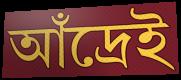
আঁদ্রেই